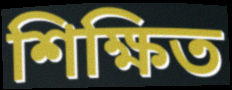
শিক্ষিত